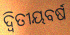
ଦ୍ୱିତୀୟବର୍ଷ